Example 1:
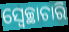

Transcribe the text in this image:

ସ୍ଵେଚ୍ଛାଚାରି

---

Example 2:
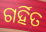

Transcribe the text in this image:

ଗର୍ହିତ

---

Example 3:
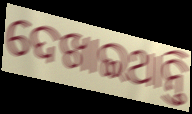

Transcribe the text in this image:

ଦେଖାଇଥାନ୍ତି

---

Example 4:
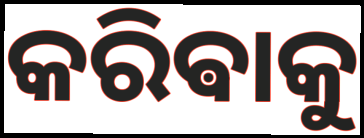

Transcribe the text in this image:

କରିଵାକୁ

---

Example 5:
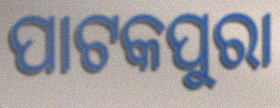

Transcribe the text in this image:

ପାଟକପୁରା